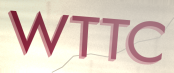
WTTC